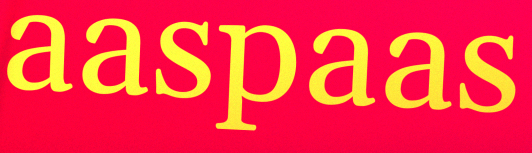
aaspaas